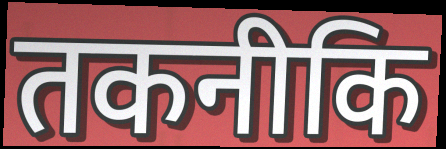
तकनीकि